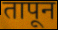
तापून